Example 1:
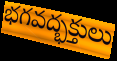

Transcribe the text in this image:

భగవద్భక్తులు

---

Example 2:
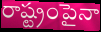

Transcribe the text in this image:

రాష్ట్రంపైనా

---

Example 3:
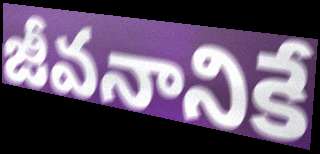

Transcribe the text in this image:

జీవనానికే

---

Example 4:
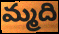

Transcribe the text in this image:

మ్మది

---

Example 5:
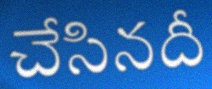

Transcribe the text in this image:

చేసినదీ